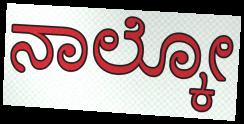
ನಾಲ್ಕೋ